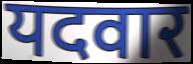
यदवार